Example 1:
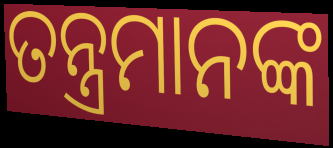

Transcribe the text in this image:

ତନ୍ତ୍ରମାନଙ୍କ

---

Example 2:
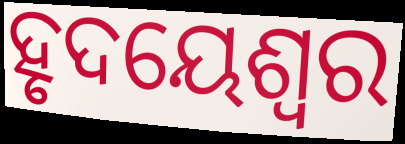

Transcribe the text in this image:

ହୃଦୟେଶ୍ୱର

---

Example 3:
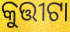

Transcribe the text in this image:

କୁତ୍ତୀଟା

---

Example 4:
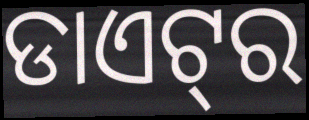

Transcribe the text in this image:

ଡାଏଟ୍‌ର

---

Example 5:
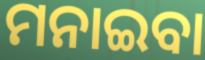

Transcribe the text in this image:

ମନାଇବା